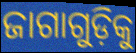
ଜାଗାଗୁଡ଼ିକୁ